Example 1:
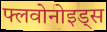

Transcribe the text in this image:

फ्लवोनोइड्स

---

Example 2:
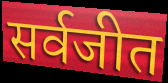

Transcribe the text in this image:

सर्वजीत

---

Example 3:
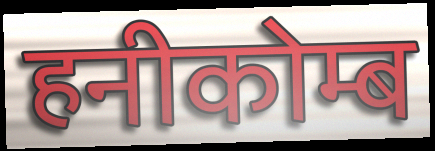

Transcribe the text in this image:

हनीकोम्ब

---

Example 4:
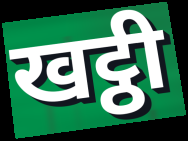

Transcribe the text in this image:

खट्ठी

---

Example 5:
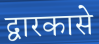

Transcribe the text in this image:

द्वारकासे